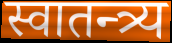
स्वातन्त्र्य